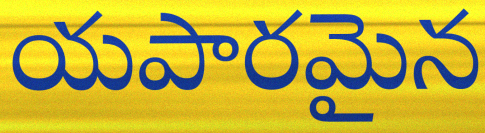
యపారమైన